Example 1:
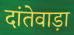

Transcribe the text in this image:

दांतेवाड़ा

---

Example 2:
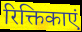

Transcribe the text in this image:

रिक्तिकाएं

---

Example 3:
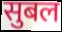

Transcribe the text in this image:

सुबल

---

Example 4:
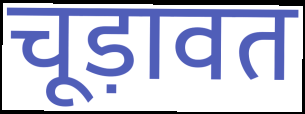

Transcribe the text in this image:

चूड़ावत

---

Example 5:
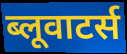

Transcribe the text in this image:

ब्लूवाटर्स